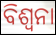
ବିଶ୍ୱନା